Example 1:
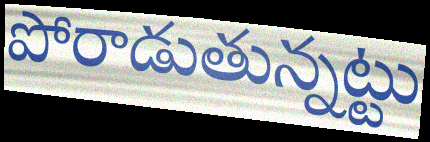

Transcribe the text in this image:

పోరాడుతున్నట్టు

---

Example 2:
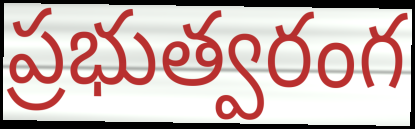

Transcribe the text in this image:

ప్రభుత్వరంగ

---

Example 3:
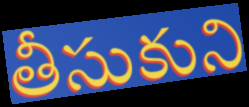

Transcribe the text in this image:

తీసుకుని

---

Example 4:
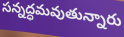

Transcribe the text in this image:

సన్నద్ధమవుతున్నారు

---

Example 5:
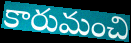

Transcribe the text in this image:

కారుమంచి